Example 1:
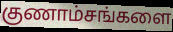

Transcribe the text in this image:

குணாம்சங்களை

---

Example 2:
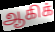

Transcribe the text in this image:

ஆகிக்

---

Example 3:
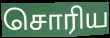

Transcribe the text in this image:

சொரிய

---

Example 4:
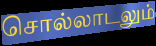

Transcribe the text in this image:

சொல்லாடலும்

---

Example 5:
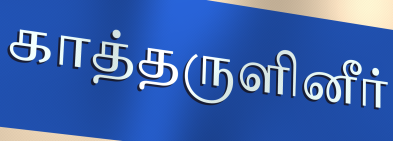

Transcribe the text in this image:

காத்தருளினீர்